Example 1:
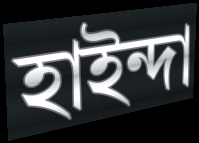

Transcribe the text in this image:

হাইন্দা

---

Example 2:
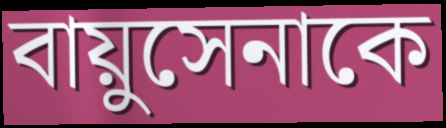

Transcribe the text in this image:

বায়ুসেনাকে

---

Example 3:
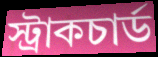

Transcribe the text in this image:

স্ট্রাকচার্ড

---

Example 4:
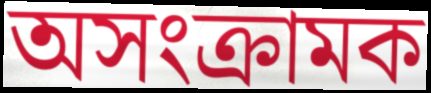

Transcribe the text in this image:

অসংক্রামক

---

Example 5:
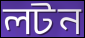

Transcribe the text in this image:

লটন